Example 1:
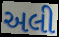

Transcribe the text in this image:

અલી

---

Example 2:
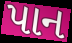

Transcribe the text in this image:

પાન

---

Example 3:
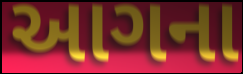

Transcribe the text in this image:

આગના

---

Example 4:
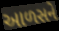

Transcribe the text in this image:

આળસને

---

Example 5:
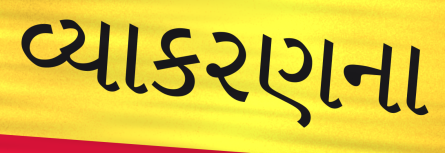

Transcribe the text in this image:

વ્યાકરણના